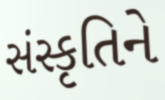
સંસ્કૃતિને